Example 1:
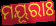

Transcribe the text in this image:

ମୟୂରାଃ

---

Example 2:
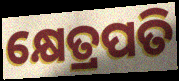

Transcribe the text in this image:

କ୍ଷେତ୍ରପତି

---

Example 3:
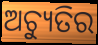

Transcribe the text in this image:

ଅଚ୍ୟୁତିର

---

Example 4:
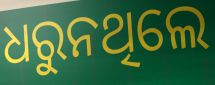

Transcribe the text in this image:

ଧରୁନଥିଲେ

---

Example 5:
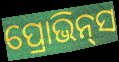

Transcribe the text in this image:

ପ୍ରୋଭିନ୍‌ସ